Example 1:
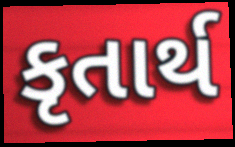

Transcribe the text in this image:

કૃતાર્થ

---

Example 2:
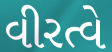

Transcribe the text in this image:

વીરત્વે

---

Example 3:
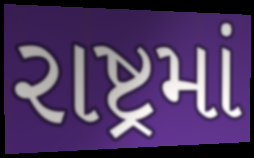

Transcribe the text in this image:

રાષ્ટ્રમાં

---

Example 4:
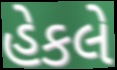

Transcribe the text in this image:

હેકલે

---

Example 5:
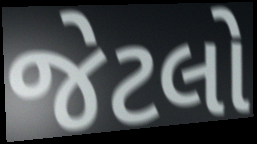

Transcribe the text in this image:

જેટલો